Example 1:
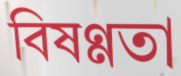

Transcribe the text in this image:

বিষণ্ণতা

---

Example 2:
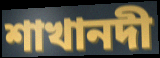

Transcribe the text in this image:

শাখানদী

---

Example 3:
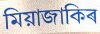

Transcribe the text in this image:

মিয়াজাকিৰ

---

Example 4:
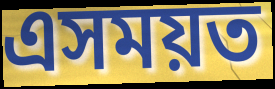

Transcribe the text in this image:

এসময়ত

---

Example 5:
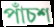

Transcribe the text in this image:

পাঁচশ